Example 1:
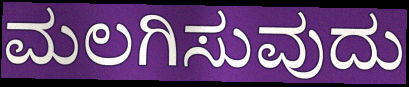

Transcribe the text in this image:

ಮಲಗಿಸುವುದು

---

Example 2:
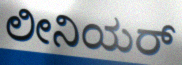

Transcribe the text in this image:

ಲೀನಿಯರ್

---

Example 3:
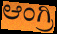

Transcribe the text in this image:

ಆಂಗ್ರಿ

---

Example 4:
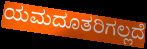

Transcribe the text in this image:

ಯಮದೂತರಿಗಲ್ಲದೆ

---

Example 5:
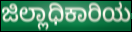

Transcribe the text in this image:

ಜಿಲ್ಲಾಧಿಕಾರಿಯ